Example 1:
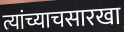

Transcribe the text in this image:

त्यांच्याचसारखा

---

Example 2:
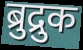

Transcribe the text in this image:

ब्रुद्रुक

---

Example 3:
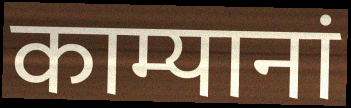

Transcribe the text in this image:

काम्यानां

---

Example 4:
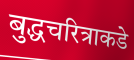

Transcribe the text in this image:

बुद्धचरित्राकडे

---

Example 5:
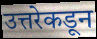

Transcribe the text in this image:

उत्तरेकडून